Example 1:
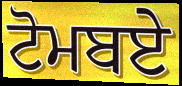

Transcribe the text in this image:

ਟੋਮਬਏ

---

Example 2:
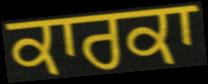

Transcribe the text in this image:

ਕਾਰਕਾ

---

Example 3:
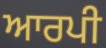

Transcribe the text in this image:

ਆਰਪੀ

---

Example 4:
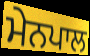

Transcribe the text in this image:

ਮੇਨਪਾਲ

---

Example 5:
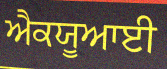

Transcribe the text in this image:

ਐਕਯੂਆਈ